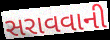
સરાવવાની